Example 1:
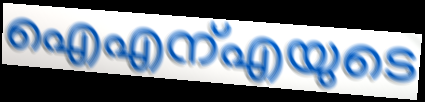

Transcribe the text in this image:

ഐഎന്എയുടെ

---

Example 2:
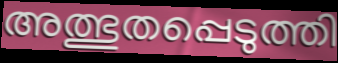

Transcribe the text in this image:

അത്ഭുതപ്പെടുത്തി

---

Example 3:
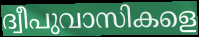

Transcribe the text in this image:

ദ്വീപുവാസികളെ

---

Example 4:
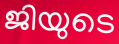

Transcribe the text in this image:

ജിയുടെ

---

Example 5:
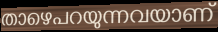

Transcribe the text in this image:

താഴെപറയുന്നവയാണ്